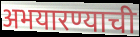
अभयारण्याची